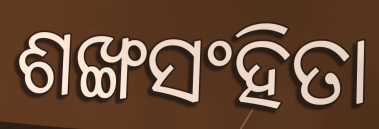
ଶଙ୍ଖସଂହିତା